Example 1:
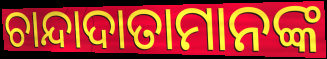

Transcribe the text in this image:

ଚାନ୍ଦାଦାତାମାନଙ୍କ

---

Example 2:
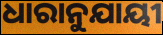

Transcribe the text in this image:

ଧାରାନୁଯାୟୀ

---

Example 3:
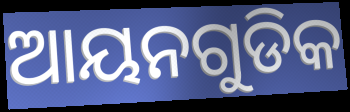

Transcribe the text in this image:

ଆୟନଗୁଡିକ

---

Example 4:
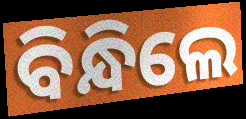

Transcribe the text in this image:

ବିନ୍ଧିଲେ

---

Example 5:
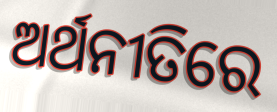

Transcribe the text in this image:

ଅର୍ଥନୀତିରେ